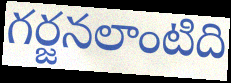
గర్జనలాంటిది